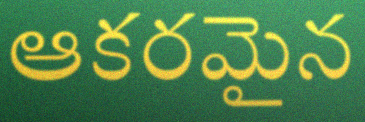
ఆకరమైన